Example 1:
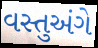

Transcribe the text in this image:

વસ્તુઅંગે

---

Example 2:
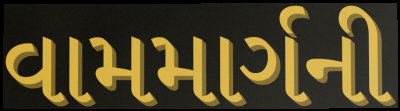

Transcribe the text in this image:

વામમાર્ગની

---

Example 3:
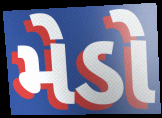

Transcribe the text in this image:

મેડો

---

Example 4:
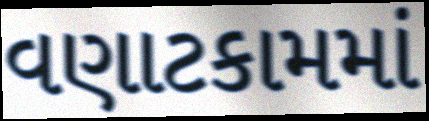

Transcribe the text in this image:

વણાટકામમાં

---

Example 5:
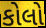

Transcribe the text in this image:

કોલો